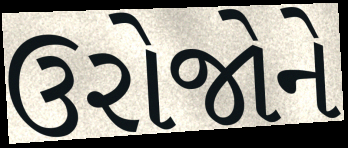
ઉરોજોને